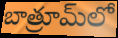
బాత్రూమ్‌లో